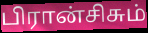
பிரான்சிசும்